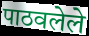
पाठवलेले